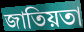
জাতিয়তা